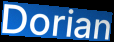
Dorian